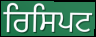
ਰਿਸਿਪਟ